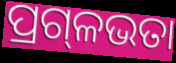
ପ୍ରଗ୍‍ଳଭତା